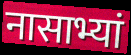
नासाभ्यां